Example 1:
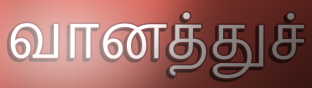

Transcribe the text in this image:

வானத்துச்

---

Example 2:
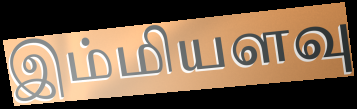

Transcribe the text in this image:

இம்மியளவு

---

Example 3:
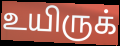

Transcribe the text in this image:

உயிருக்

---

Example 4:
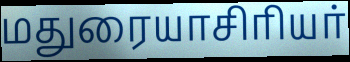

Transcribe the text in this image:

மதுரையாசிரியர்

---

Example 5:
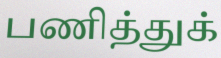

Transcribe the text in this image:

பணித்துக்